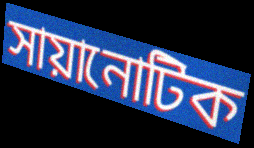
সায়ানোটিক